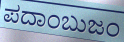
ಪದಾಂಬುಜಂ